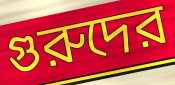
গুরুদের